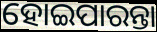
ହୋଇପାରନ୍ତା